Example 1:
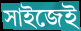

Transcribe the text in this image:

সাইজেই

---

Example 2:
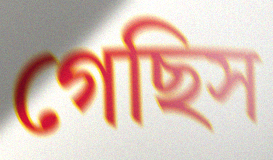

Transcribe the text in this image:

গেছিস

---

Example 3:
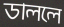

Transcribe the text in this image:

ডাললে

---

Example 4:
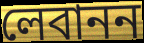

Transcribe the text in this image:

লেবানন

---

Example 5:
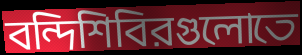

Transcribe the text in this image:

বন্দিশিবিরগুলোতে